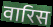
वारिस